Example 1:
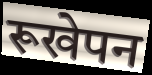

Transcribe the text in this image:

रूखेपन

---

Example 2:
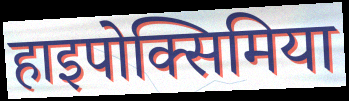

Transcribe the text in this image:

हाइपोक्सिमिया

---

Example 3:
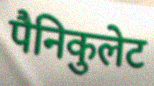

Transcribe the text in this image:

पैनिकुलेट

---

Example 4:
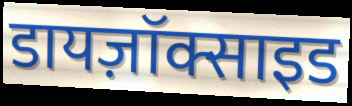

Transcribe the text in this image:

डायज़ॉक्साइड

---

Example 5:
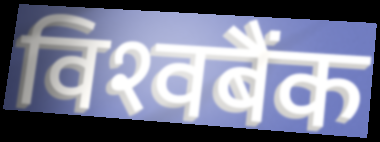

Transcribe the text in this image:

विश्वबैंक